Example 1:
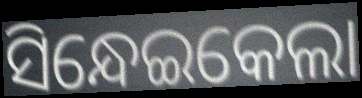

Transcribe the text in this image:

ସିନ୍ଧେଇକେଲା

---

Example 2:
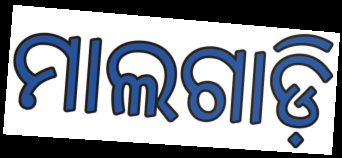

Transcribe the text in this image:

ମାଲଗାଡ଼ି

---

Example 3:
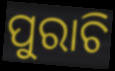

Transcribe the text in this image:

ପୁରାଚି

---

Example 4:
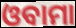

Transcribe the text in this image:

ଓବାମା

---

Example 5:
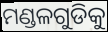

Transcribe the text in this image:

ମଣ୍ଡଳଗୁଡିକୁ